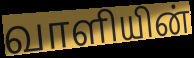
வாளியின்